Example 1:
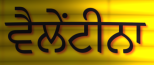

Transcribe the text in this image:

ਵੈਲੇਂਟੀਨਾ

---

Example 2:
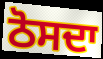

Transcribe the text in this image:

ਠੋਸਦਾ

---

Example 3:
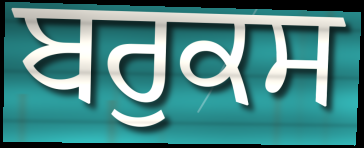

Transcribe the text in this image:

ਬਰੁਕਸ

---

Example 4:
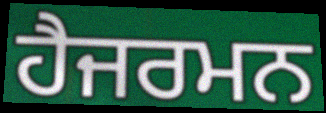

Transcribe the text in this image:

ਹੈਜਰਮਨ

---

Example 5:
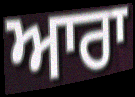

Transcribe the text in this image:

ਆਰਾ